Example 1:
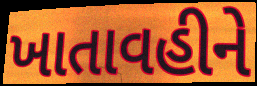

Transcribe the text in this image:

ખાતાવહીને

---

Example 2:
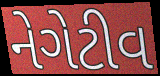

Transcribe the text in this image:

નેગેટીવ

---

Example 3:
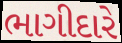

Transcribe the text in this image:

ભાગીદારે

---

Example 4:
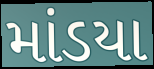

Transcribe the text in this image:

માંડયા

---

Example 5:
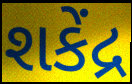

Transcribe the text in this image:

શકેંદ્ર